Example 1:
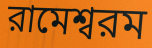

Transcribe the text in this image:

রামেশ্বরম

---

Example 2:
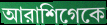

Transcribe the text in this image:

আরাশিগেকে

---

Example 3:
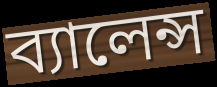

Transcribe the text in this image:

ব্যালেন্স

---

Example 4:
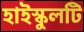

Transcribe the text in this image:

হাইস্কুলটি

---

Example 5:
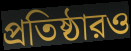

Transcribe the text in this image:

প্রতিষ্ঠারও